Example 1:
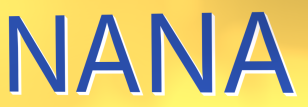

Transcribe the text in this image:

NANA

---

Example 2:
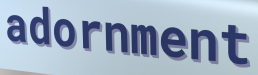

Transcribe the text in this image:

adornment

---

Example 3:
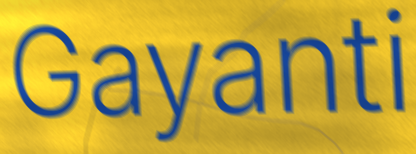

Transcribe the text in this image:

Gayanti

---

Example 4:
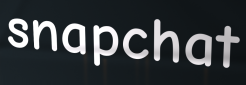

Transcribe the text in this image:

snapchat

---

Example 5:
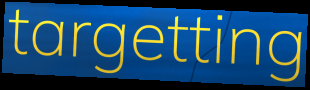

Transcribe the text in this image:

targetting